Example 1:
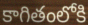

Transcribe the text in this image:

కాగితంలోకి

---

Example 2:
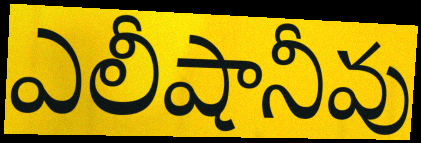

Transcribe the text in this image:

ఎలీషానీవు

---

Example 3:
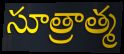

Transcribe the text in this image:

సూత్రాత్మ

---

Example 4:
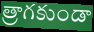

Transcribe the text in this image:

త్రాగకుండా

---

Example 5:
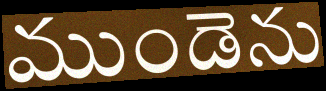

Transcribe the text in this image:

ముండెను